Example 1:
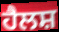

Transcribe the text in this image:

ਹੈਲਸ਼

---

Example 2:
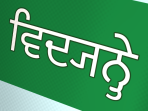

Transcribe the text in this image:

ਵਿਦ੍ਯਨ੍ਤੇ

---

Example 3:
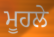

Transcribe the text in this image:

ਮੂਹਲੇ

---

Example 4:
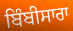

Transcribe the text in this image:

ਬਿੰਬੀਸਾਰਾ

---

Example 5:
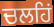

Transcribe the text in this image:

ਚਲਹਿਂ